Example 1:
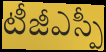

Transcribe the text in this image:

టీజీఎస్పీ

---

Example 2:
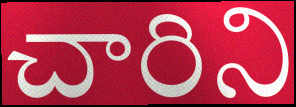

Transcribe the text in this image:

చారిని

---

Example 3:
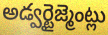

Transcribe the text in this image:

అడ్వర్టైజ్మెంట్లు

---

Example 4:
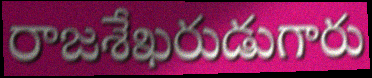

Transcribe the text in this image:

రాజశేఖరుడుగారు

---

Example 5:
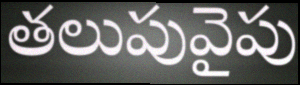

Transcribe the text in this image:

తలుపువైపు